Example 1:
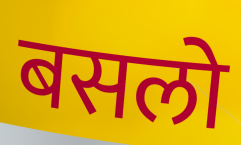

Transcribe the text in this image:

बसलो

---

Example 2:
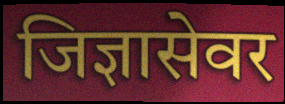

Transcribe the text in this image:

जिज्ञासेवर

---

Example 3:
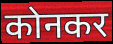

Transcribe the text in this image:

कोनकर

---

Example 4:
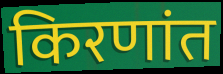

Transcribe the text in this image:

किरणांत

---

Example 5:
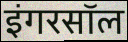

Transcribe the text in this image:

इंगरसॉल